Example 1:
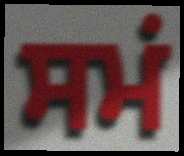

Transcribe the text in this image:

ਸਮਂ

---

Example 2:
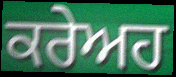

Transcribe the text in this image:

ਕਰੇਅਹ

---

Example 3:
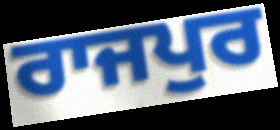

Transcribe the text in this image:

ਰਾਜਪੁਰ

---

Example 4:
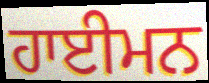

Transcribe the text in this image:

ਹਾਈਮਨ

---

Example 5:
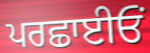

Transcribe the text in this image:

ਪਰਛਾਈਓਂ